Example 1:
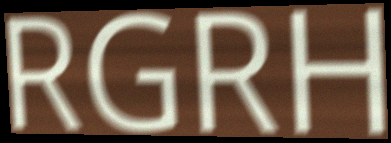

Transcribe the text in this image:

RGRH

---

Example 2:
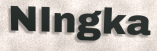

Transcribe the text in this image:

NIngka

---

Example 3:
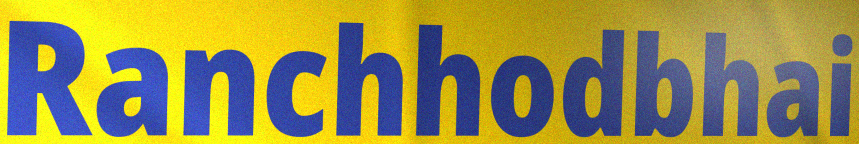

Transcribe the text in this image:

Ranchhodbhai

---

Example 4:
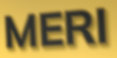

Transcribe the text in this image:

MERI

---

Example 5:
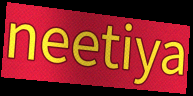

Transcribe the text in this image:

neetiya